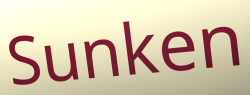
Sunken